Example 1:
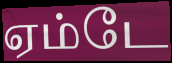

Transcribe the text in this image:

ஏம்டே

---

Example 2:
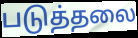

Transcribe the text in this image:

படுத்தலை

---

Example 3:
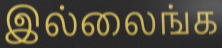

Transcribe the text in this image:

இல்லைங்க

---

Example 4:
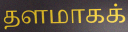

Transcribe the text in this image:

தளமாகக்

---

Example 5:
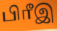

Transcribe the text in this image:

பிரீஇ